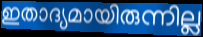
ഇതാദ്യമായിരുന്നില്ല